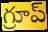
గ్రూప్